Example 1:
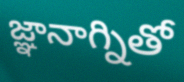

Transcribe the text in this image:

జ్ఞానాగ్నితో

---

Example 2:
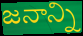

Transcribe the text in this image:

జనాన్ని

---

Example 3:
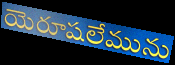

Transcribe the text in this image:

యెరూషలేమును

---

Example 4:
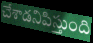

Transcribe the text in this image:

చేశాడనిపిస్తుంది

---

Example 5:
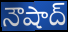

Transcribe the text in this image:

నౌషాద్